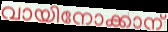
വായിനോക്കാന്